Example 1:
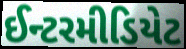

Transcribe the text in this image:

ઈન્ટરમીડિયેટ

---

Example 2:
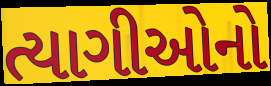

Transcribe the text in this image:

ત્યાગીઓનો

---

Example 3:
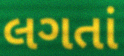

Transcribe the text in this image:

લગતાં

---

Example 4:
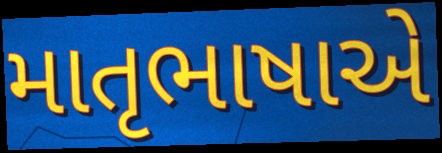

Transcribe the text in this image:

માતૃભાષાએ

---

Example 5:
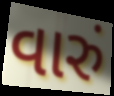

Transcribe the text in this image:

વારું